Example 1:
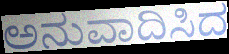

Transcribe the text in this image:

ಅನುವಾದಿಸಿದ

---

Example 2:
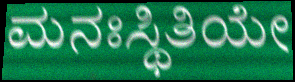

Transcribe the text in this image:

ಮನಃಸ್ಥಿತಿಯೇ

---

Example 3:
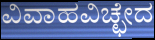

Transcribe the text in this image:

ವಿವಾಹವಿಚ್ಛೇದ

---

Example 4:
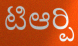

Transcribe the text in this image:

ಟಿಆರ್‍ಪಿ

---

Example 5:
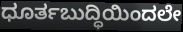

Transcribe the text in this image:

ಧೂರ್ತಬುದ್ಧಿಯಿಂದಲೇ